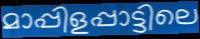
മാപ്പിളപ്പാട്ടിലെ